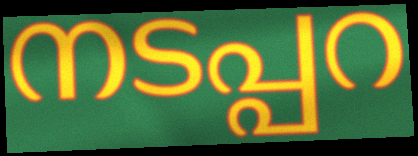
നടപ്പറ